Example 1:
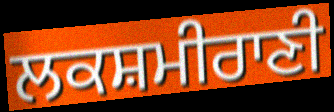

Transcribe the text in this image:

ਲਕਸ਼ਮੀਰਾਣੀ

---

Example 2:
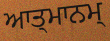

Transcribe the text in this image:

ਆਤ੍ਮਾਨਮ੍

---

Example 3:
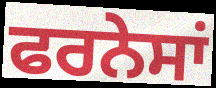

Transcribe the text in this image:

ਫਰਨੇਸਾਂ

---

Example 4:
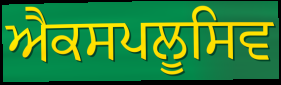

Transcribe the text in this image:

ਐਕਸਪਲੂਸਿਵ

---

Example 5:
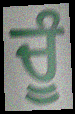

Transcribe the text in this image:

ਚੂੰ